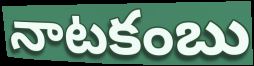
నాటకంబు